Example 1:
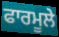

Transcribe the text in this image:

ਫਾਰਮੂਲੇ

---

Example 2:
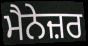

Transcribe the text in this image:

ਮੈਨੇਜ਼ਰ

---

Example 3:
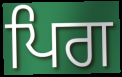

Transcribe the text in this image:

ਪਿਗ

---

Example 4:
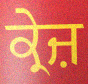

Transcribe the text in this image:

ਕ੍ਰੇਜ਼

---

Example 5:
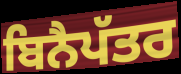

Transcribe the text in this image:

ਬਿਨੈਪੱਤਰ